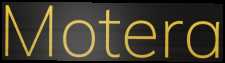
Motera